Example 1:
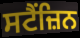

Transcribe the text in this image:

ਸਟੈਂਜ਼ਿਨ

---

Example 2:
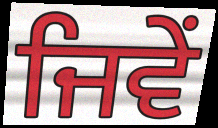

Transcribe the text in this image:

ਜਿਵੇਂ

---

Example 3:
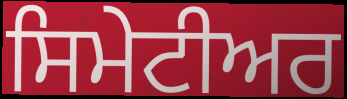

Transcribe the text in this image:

ਸਿਮੇਟੀਅਰ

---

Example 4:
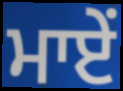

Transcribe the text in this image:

ਮਾਏਂ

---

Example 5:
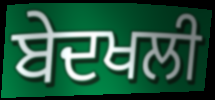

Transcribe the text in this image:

ਬੇਦਖਲੀ